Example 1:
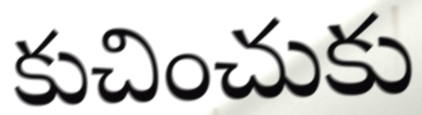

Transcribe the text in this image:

కుచించుకు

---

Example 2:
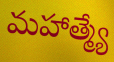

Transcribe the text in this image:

మహాత్మ్యే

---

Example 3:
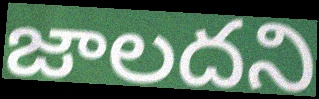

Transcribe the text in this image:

జాలదని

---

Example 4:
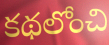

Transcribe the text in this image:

కథలోంచి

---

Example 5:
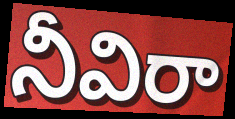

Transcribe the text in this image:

నీవిరా